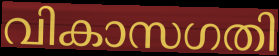
വികാസഗതി